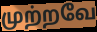
முற்றவே